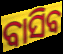
ବାସିବ